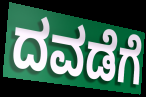
ದವಡೆಗೆ